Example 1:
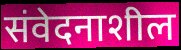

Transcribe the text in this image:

संवेदनाशील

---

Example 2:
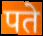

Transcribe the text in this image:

पते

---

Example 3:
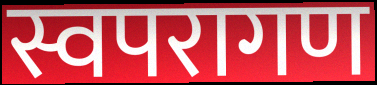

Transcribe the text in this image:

स्वपरागण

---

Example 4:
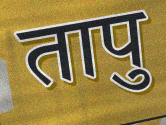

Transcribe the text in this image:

तापु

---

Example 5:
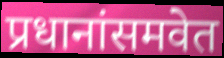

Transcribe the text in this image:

प्रधानांसमवेत